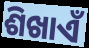
ଶିଖାଏଁ